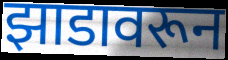
झाडावरून